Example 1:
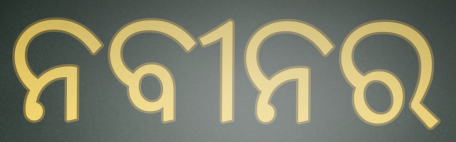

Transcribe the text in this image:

ନବୀନର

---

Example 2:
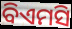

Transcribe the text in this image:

ବିଏମସି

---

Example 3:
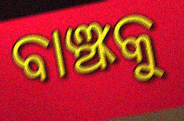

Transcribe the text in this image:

ବାଞ୍ଝକୁ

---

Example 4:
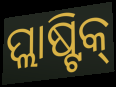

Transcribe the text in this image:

ପ୍ଲାଷ୍ଟିକ୍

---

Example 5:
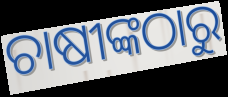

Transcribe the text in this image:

ଚାଷୀଙ୍କଠାରୁ